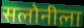
सलोनीला